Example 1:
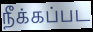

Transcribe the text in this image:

நீக்கப்பட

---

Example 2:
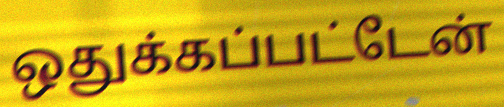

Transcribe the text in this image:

ஒதுக்கப்பட்டேன்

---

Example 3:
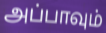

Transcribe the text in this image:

அப்பாவும்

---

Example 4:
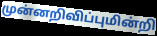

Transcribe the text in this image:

முன்னறிவிப்புமின்றி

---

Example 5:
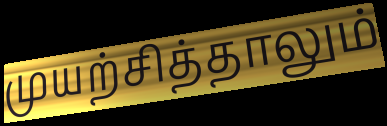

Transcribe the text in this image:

முயற்சித்தாலும்